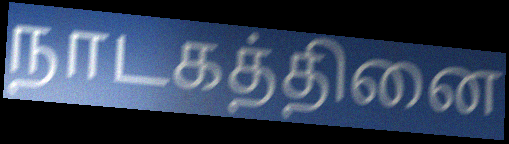
நாடகத்தினை